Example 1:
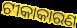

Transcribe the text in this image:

ଟୀକାକାରଣ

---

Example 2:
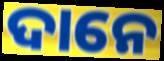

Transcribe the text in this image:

ଦାନେ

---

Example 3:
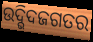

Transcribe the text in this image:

ଉଦ୍ଭିଦଜଗତର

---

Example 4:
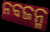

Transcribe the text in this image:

ନବଜନ୍ମ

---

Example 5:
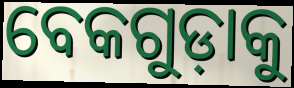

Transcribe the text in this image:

ବେକଗୁଡ଼ାକୁ